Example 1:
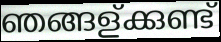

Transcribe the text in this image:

ഞങ്ങള്ക്കുണ്ട്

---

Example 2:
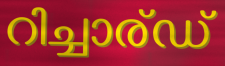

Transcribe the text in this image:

റിച്ചാര്ഡ്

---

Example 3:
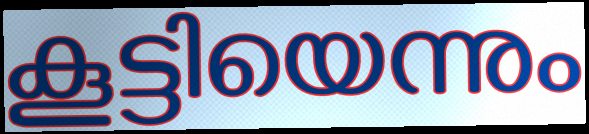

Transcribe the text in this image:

കൂട്ടിയെന്നും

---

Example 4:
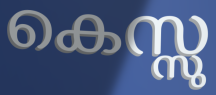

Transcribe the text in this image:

കെസ്സു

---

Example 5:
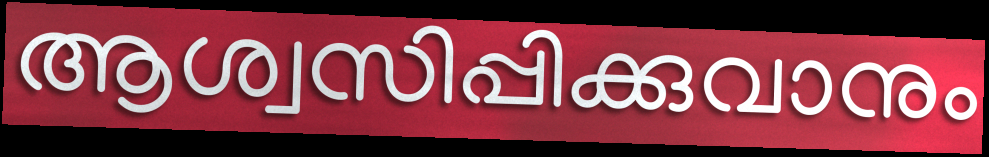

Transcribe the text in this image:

ആശ്വസിപ്പിക്കുവാനും